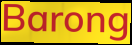
Barong